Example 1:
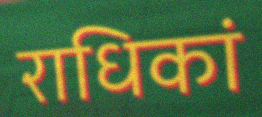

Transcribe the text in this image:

राधिकां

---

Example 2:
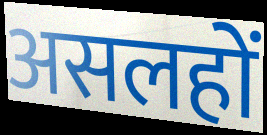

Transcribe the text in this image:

असलहों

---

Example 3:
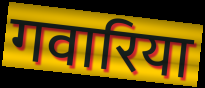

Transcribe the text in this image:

गवारिया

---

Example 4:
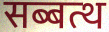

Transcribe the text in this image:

सब्बत्थ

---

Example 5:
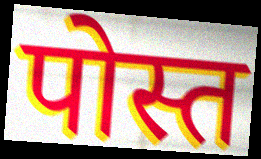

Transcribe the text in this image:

पोस्त